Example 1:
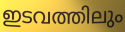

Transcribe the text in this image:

ഇടവത്തിലും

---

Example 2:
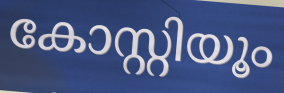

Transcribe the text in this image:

കോസ്റ്റിയൂം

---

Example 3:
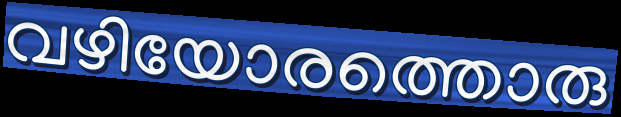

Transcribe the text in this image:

വഴിയോരത്തൊരു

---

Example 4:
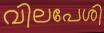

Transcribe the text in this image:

വിലപേശി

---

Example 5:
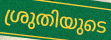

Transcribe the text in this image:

ശ്രുതിയുടെ